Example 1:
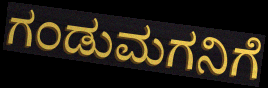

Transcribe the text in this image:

ಗಂಡುಮಗನಿಗೆ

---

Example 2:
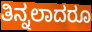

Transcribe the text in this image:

ತಿನ್ನಲಾದರೂ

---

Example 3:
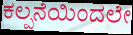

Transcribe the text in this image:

ಕಲ್ಪನೆಯಿಂದಲೇ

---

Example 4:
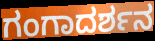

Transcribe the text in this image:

ಗಂಗಾದರ್ಶನ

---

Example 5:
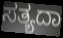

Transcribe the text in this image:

ಸತ್ಯದಾ